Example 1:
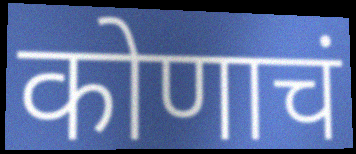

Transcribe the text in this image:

कोणाचं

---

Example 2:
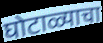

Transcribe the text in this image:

घोटाळ्याचा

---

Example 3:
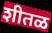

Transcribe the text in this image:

शीतळ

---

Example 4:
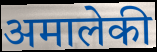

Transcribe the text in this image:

अमालेकी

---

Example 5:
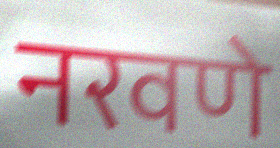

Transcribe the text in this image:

नरवणे